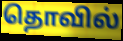
தொவில்